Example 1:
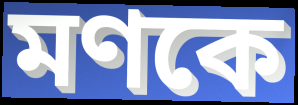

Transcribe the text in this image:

মণকে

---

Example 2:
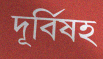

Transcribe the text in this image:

দূর্বিষহ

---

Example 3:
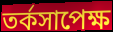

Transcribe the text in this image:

তর্কসাপেক্ষ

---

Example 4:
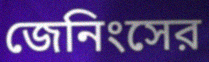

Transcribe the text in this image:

জেনিংসের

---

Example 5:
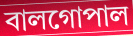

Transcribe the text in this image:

বালগোপাল